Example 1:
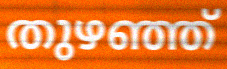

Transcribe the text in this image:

തുഴഞ്ഞ്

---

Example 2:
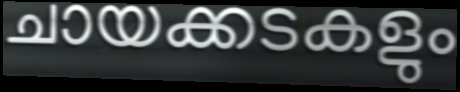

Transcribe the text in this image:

ചായക്കടകളും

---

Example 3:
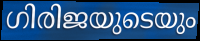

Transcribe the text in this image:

ഗിരിജയുടെയും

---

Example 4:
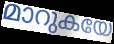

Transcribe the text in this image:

മാറുകയേ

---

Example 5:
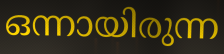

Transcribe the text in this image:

ഒന്നായിരുന്ന